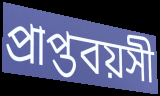
প্রাপ্তবয়সী